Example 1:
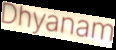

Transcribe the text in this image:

Dhyanam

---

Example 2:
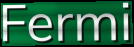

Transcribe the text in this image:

Fermi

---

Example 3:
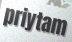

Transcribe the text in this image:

priytam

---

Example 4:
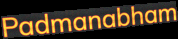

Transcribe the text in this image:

Padmanabham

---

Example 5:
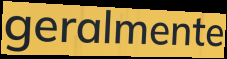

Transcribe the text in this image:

geralmente